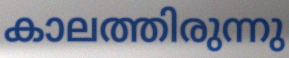
കാലത്തിരുന്നു